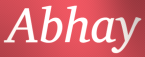
Abhay